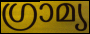
ഗ്രാമ്യ